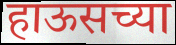
हाऊसच्या